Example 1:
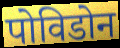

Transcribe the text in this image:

पोविडोन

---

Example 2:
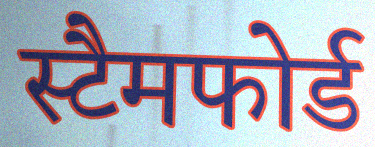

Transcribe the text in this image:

स्टैमफोर्ड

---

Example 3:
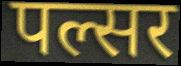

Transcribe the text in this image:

पल्सर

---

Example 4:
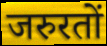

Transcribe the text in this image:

जरुरतों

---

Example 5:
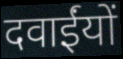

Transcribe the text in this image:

दवाईंयों